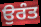
ਉਰੰਤ